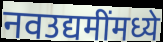
नवउद्यमींमध्ये